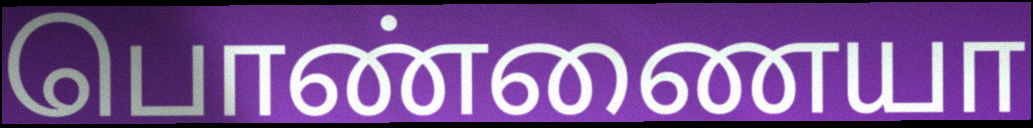
பொண்ணையா